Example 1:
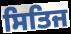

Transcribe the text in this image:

ਸਿਤਿਜ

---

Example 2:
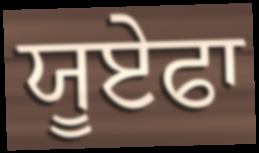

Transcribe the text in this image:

ਯੂਏਫਾ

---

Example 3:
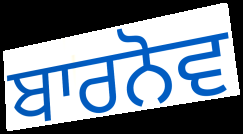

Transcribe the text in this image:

ਬਾਰਨੋਵ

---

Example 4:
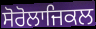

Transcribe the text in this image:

ਸੋਰੋਲਾਜਿਕਲ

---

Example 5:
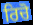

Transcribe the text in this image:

ਰਿਚੋ